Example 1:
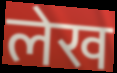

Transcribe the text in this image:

लेख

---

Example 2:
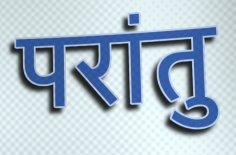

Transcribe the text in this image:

परांतु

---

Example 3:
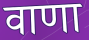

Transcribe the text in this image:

वाणा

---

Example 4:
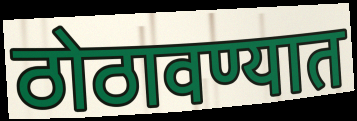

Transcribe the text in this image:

ठोठावण्यात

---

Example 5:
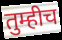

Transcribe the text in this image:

तुम्हीच